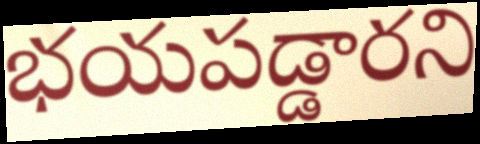
భయపడ్డారని